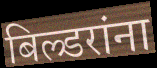
बिल्डरांना